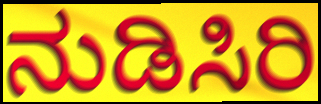
ನುಡಿಸಿರಿ